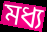
মধ্য